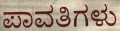
ಪಾವತಿಗಳು